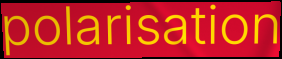
polarisation